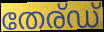
തേര്ഡ്